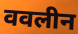
ववलीन